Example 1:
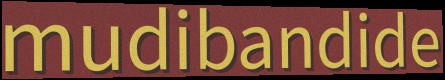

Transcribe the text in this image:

mudibandide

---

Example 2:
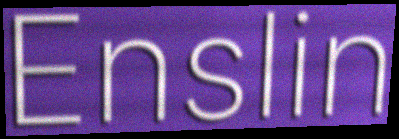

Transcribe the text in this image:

Enslin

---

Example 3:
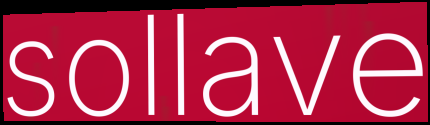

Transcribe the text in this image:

sollave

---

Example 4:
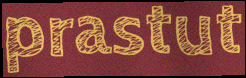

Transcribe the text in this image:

prastut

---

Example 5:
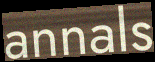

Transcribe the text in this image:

annals